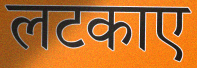
लटकाए